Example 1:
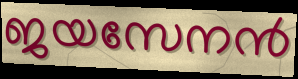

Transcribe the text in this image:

ജയസേനൻ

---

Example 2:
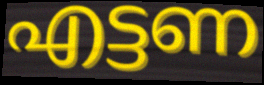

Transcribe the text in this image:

എട്ടണ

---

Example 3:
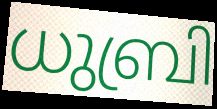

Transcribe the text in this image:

ധുബ്രി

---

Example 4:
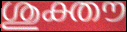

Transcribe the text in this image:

ശുക്തൗ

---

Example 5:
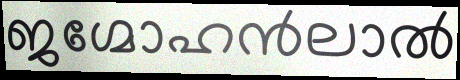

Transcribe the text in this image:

ജഗ്മോഹൻലാൽ